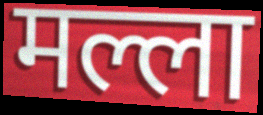
मल्ला